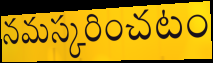
నమస్కరించటం